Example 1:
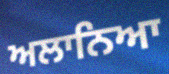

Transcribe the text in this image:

ਅਲਾਨਿਆ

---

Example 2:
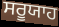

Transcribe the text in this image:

ਸਰੂਯਾਹ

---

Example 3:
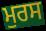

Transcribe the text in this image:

ਮੁਰਸ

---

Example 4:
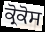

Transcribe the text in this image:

ਕ੍ਰੋਕੋਸ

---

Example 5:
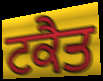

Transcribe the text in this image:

ਟਕੈਤ